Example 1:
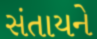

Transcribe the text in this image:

સંતાયને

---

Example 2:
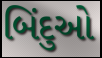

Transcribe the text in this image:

બિંદુઓ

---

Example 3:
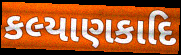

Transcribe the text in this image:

કલ્યાણકાદિ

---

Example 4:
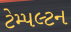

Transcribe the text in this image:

ટેમ્પલ્ટન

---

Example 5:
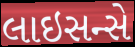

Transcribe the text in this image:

લાઇસન્સે